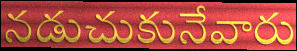
నడుచుకునేవారు